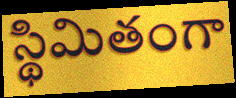
స్థిమితంగా